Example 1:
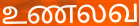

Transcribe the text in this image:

உணலவ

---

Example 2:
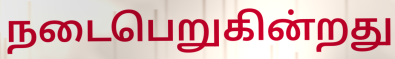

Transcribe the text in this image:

நடைபெறுகின்றது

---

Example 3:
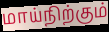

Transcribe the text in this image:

மாய்நிற்கும்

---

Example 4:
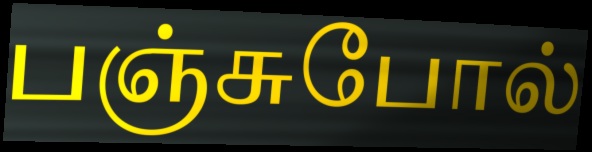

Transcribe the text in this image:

பஞ்சுபோல்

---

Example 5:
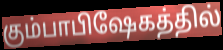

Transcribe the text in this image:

கும்பாபிஷேகத்தில்